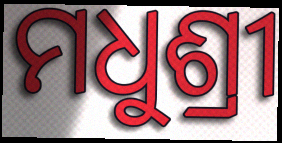
ମଧୁଶ୍ରୀ